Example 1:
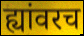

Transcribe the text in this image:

ह्यांवरच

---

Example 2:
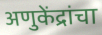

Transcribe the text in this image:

अणुकेंद्रांचा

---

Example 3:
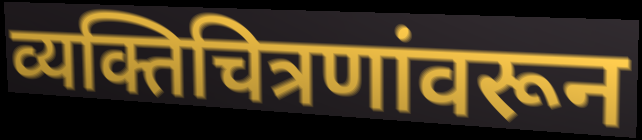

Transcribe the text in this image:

व्यक्तिचित्रणांवरून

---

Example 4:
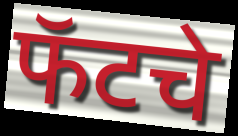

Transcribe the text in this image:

फॅटचे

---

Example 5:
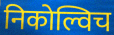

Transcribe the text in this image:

निकोल्विच